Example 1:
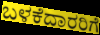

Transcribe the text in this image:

ಬಳಕೆದಾರರಿಗೆ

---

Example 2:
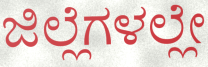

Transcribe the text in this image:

ಜಿಲ್ಲೆಗಳಲ್ಲೇ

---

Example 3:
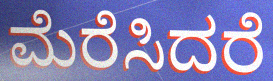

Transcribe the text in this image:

ಮೆರೆಸಿದರೆ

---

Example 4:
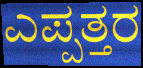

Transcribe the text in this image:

ಎಪ್ಪತ್ತರ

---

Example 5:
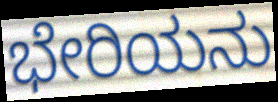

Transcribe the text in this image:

ಭೇರಿಯನು